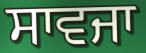
ਸਾਵਜਾ